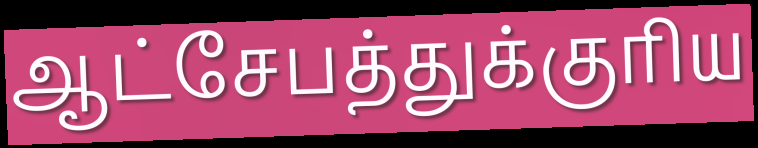
ஆட்சேபத்துக்குரிய